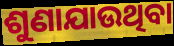
ଶୁଣାଯାଉଥିବା